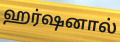
ஹர்ஷனால்